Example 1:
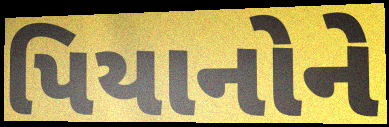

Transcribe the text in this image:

પિયાનોને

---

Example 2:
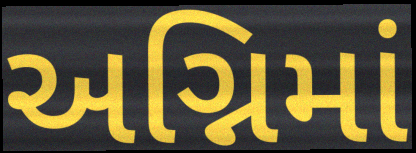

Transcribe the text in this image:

અગ્નિમાં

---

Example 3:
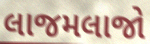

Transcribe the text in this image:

લાજમલાજો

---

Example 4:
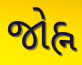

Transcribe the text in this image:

જોહ્ન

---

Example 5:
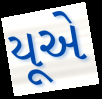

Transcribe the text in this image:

યૂએ